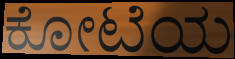
ಕೋಟೆಯ